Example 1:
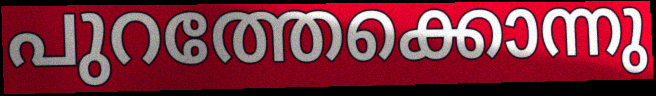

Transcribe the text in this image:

പുറത്തേക്കൊന്നു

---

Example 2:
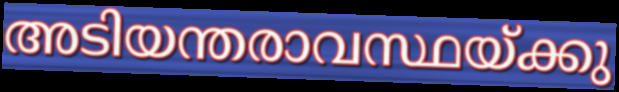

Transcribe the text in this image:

അടിയന്തരാവസ്ഥയ്ക്കു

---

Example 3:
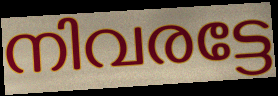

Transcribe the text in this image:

നിവരട്ടേ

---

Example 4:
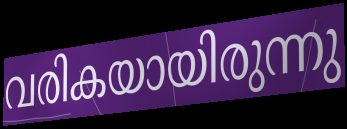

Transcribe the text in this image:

വരികയായിരുന്നു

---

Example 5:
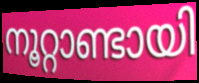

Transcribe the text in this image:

നൂറ്റാണ്ടായി